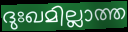
ദുഃഖമില്ലാത്ത